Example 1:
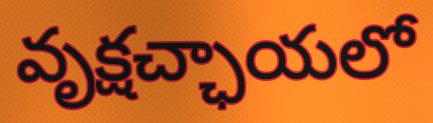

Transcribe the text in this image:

వృక్షచ్ఛాయలో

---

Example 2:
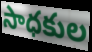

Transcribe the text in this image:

సాధకుల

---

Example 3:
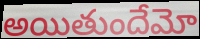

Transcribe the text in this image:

అయితుందేమో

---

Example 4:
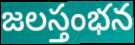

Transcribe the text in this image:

జలస్తంభన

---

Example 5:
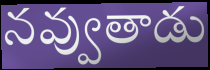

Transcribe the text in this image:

నవ్వుతాడు